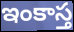
ఇంకాస్త